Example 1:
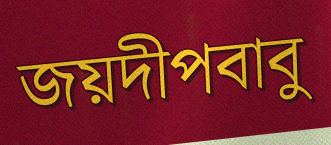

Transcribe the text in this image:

জয়দীপবাবু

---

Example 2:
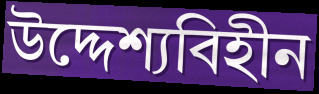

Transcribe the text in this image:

উদ্দেশ্যবিহীন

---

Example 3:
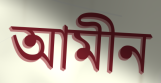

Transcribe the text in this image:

আমীন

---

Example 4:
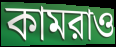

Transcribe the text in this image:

কামরাও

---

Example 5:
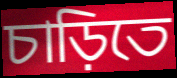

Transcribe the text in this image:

চাড়িতে